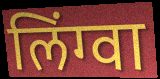
लिंग्वा